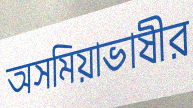
অসমিয়াভাষীর